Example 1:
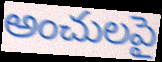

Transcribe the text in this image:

అంచులపై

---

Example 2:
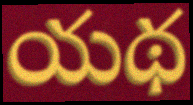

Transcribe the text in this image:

యథ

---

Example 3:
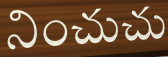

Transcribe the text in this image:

నించుచు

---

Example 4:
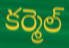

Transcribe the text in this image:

కర్మెల్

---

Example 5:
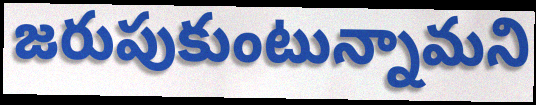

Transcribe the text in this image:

జరుపుకుంటున్నామని